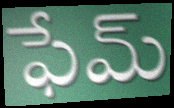
ఫేమ్